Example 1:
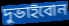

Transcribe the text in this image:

দুভাইবোন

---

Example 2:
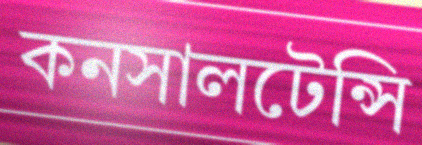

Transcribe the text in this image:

কনসালটেন্সি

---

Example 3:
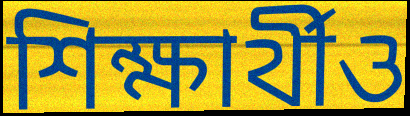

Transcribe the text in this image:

শিক্ষার্থীও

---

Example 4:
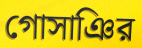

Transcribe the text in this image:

গোসাঞির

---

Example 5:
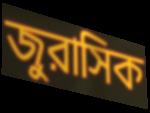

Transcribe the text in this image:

জুরাসিক